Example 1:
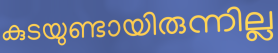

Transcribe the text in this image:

കുടയുണ്ടായിരുന്നില്ല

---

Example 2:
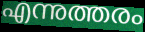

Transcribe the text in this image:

എന്നുത്തരം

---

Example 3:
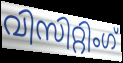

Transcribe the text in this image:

വിസിറ്റിംഗ്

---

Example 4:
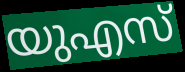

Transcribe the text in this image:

യുഎസ്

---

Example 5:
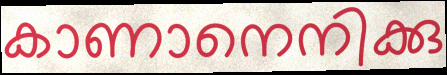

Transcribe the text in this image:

കാണാനെനിക്കു